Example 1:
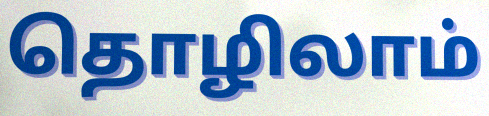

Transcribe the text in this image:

தொழிலாம்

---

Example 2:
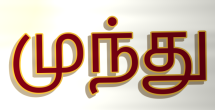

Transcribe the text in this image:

முந்து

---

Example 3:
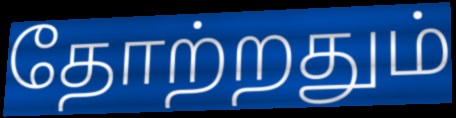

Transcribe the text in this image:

தோற்றதும்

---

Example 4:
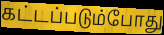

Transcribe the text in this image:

கட்டப்படும்போது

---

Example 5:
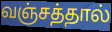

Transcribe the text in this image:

வஞ்சத்தால்